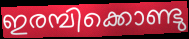
ഇരമ്പിക്കൊണ്ടു